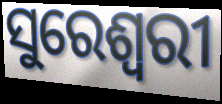
ସୁରେଶ୍ଵରୀ